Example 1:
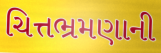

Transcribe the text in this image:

ચિત્તભ્રમણાની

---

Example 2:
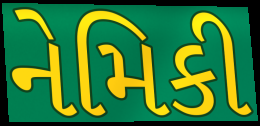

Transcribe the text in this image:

નેમિકી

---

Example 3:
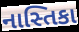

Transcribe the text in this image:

નાસ્તિકા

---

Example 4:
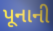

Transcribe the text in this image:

પૂનાની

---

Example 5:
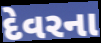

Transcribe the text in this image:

દેવરના